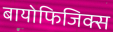
बायोफिजिक्स